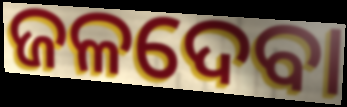
ଜଳଦେବା